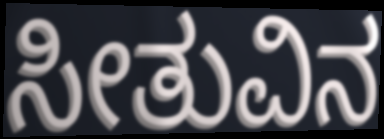
ಸೀತುವಿನ